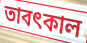
তাবৎকাল